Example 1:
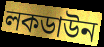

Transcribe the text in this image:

লকডাউন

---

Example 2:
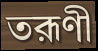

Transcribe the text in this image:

তরূণী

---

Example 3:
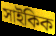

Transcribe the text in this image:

সাইকিক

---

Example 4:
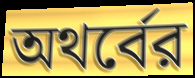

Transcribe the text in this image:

অথর্বের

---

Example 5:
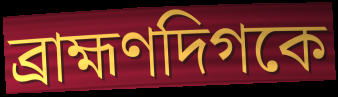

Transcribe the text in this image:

ব্রাহ্মণদিগকে